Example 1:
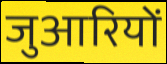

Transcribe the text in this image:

जुआरियों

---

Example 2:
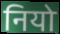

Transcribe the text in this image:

नियो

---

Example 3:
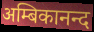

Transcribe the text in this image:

अम्बिकानन्द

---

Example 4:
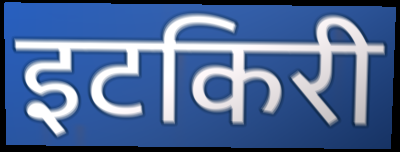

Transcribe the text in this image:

इटकिरी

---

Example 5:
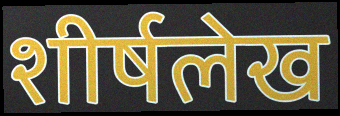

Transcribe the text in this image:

शीर्षलेख